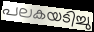
പലകയടിച്ചു